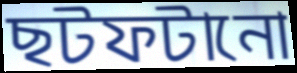
ছটফটানো